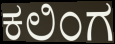
ಕಲಿಂಗ